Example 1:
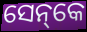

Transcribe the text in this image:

ସେନ୍‌କେ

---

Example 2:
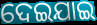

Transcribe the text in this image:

ଦେଇଯାଇ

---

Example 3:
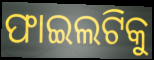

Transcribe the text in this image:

ଫାଇଲଟିକୁ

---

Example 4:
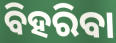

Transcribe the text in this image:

ବିହରିବା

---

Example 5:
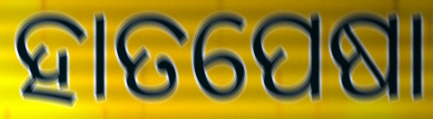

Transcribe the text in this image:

ହାତପେଷା